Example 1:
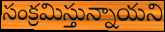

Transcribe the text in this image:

సంక్రమిస్తున్నాయని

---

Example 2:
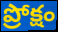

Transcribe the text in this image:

ప్రోక్షం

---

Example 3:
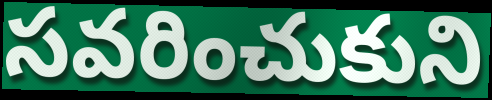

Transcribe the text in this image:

సవరించుకుని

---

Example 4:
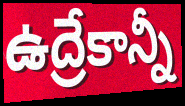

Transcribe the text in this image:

ఉద్రేకాన్నీ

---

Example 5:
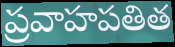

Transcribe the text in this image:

ప్రవాహపతిత